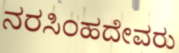
ನರಸಿಂಹದೇವರು